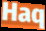
Haq